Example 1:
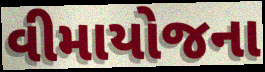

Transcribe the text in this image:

વીમાયોજના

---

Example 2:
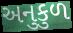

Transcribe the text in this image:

અનુકુળ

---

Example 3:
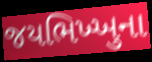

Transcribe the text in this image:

જયભિખ્ખુના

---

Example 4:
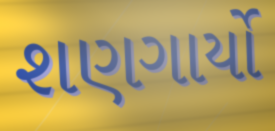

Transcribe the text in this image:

શણગાર્યો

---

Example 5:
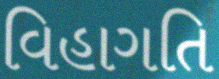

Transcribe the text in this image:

વિહાગતિ